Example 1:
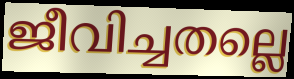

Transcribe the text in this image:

ജീവിച്ചതല്ലെ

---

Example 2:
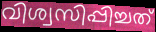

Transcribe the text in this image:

വിശ്വസിപ്പിച്ചത്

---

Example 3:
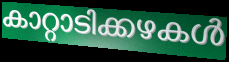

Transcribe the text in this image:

കാറ്റാടിക്കഴകൾ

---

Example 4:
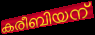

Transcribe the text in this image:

കരീബിയന്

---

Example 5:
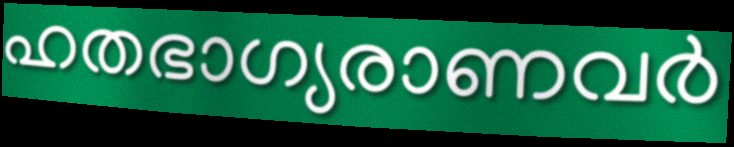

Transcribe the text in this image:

ഹതഭാഗ്യരാണവർ